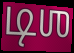
டிஶ